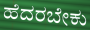
ಹೆದರಬೇಕು